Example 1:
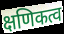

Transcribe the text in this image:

क्षणिकत्व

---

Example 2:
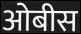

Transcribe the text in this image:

ओबीस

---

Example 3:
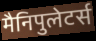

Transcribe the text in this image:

मैनिपुलेटर्स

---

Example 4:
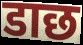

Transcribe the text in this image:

डाछ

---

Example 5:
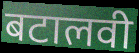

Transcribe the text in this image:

बटालवी